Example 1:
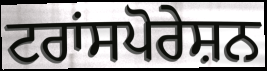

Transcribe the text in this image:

ਟਰਾਂਸਪੋਰੇਸ਼ਨ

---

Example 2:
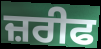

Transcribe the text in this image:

ਜ਼ਰੀਫ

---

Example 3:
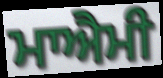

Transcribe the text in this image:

ਮਾਐਮੀ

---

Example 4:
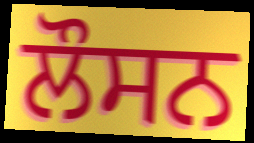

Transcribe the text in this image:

ਲੌਸਨ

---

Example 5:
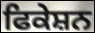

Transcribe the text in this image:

ਫਿਕੇਸ਼ਨ